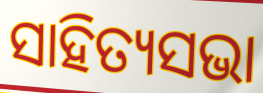
ସାହିତ୍ୟସଭା